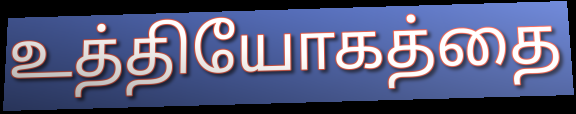
உத்தியோகத்தை